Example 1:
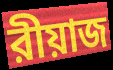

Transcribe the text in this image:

রীয়াজ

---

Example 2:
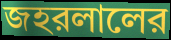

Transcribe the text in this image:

জহরলালের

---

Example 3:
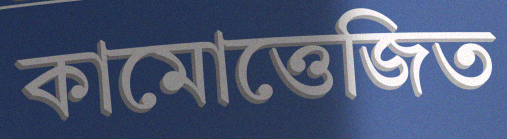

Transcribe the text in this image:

কামোত্তেজিত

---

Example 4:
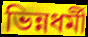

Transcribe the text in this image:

ভিন্নধর্মী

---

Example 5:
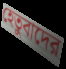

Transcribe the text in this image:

হেতুবাদের